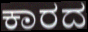
ಕಾರದ